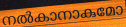
നൽകാനാകുമോ